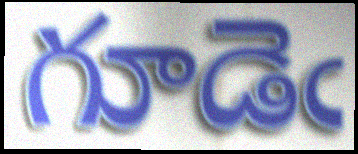
గూడెఁ